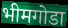
भीमगोडा